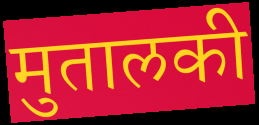
मुतालकी